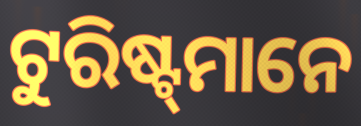
ଟୁରିଷ୍ଟ୍‍ମାନେ